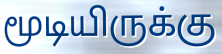
மூடியிருக்கு